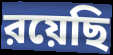
রয়েছি